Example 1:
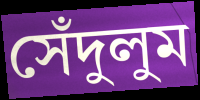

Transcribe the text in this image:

সেঁদুলুম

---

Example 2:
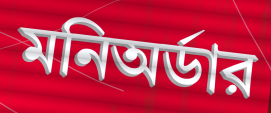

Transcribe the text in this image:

মনিঅর্ডার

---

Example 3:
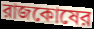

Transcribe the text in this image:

রাজকোষের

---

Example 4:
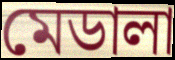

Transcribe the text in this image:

মেডালা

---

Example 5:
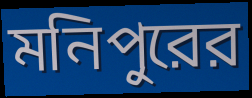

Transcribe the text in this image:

মনিপুরের